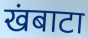
खंबाटा